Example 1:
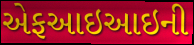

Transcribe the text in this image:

એફઆઇઆઇની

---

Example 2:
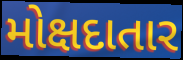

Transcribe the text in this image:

મોક્ષદાતાર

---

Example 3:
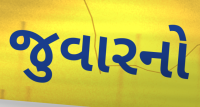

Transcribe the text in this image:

જુવારનો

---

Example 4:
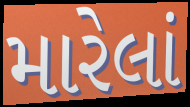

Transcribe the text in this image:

મારેલાં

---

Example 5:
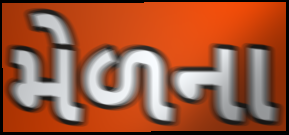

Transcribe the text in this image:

મેળના